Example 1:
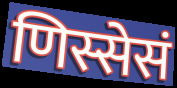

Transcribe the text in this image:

णिस्सेसं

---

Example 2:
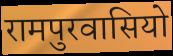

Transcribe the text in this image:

रामपुरवासियो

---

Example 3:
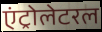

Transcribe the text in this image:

एंट्रोलेटरल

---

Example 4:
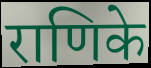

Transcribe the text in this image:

राणिके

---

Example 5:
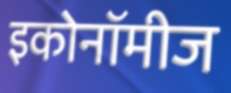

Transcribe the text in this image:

इकोनॉमीज